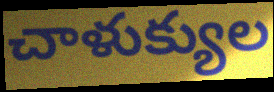
చాళుక్యుల